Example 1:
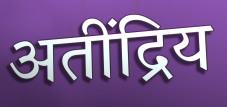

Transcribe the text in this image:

अतींद्रिय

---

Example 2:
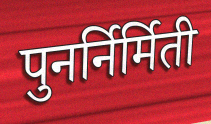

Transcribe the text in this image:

पुनर्निर्मिती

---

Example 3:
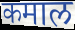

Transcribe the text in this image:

कमाल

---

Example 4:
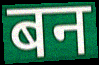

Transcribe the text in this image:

बन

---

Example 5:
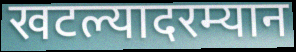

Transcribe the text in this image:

खटल्यादरम्यान